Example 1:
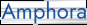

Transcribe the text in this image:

Amphora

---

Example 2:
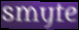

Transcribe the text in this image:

smyte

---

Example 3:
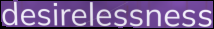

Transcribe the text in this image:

desirelessness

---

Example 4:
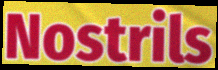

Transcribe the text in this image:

Nostrils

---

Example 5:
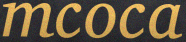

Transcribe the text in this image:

mcoca